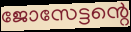
ജോസേട്ടന്റെ